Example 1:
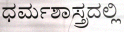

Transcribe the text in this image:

ಧರ್ಮಶಾಸ್ತ್ರದಲ್ಲಿ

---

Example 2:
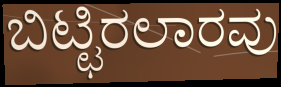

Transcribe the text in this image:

ಬಿಟ್ಟಿರಲಾರವು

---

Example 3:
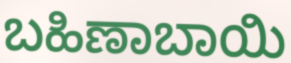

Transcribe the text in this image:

ಬಹಿಣಾಬಾಯಿ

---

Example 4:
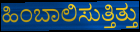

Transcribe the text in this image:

ಹಿಂಬಾಲಿಸುತ್ತಿತ್ತು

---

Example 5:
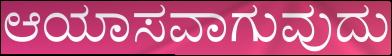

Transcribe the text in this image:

ಆಯಾಸವಾಗುವುದು